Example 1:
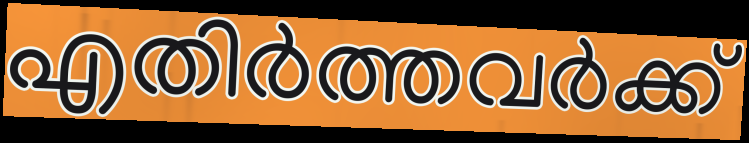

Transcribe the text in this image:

എതിർത്തവർക്ക്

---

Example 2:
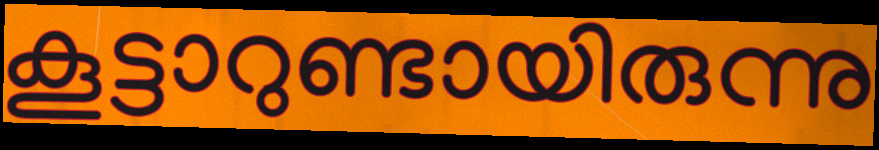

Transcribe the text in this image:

കൂട്ടാറുണ്ടായിരുന്നു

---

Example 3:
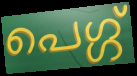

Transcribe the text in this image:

പെഗ്ഗ്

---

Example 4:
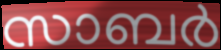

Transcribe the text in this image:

സാബർ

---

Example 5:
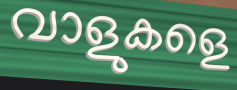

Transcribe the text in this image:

വാളുകളെ